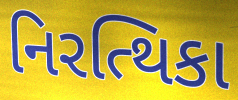
નિરત્થિકા